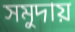
সমুদায়